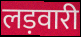
लड़वारी